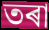
তৰা